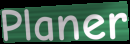
Planer